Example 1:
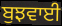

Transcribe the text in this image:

ਬੁਝਵਾਈ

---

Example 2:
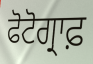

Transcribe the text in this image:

ਫੋਟੋਗ੍ਰਾਫ਼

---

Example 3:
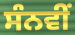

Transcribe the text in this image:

ਸੰਨਵੀਂ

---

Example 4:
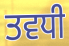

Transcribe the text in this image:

ਤਵਧੀ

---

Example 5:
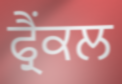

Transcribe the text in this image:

ਫ੍ਰੈਂਕਲ